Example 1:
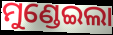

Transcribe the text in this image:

ମୁଣ୍ଡେଇଲା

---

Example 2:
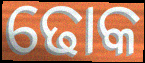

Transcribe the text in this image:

ଢୋକ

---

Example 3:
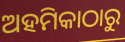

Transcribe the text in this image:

ଅହମିକାଠାରୁ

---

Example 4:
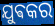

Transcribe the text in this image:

ଯୁଵକର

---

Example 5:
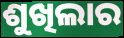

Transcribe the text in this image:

ଶୁଖିଲାର